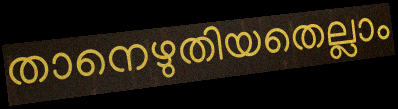
താനെഴുതിയതെല്ലാം